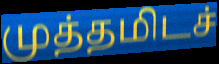
முத்தமிடச்